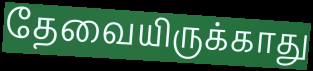
தேவையிருக்காது